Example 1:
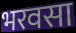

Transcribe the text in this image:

भरवसा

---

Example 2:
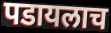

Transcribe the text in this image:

पडायलाच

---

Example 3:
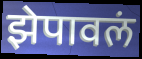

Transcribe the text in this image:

झेपावलं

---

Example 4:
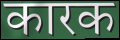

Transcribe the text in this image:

कारक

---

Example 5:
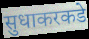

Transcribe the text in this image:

सुधाकरकडे